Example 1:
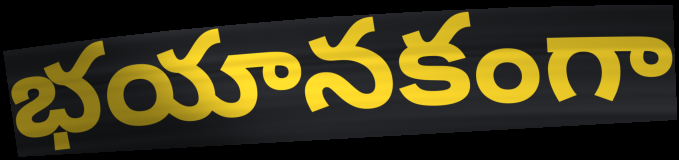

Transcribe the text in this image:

భయానకంగా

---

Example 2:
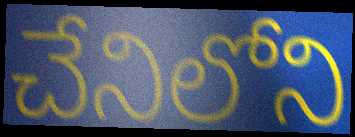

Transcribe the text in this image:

చేనిలోని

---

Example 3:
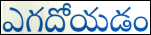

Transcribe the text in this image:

ఎగదోయడం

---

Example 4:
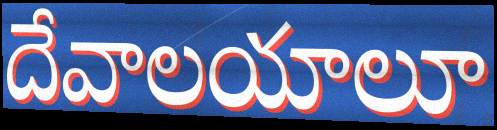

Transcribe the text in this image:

దేవాలయాలూ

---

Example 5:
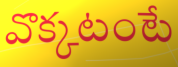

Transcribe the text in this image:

వొక్కటంటే